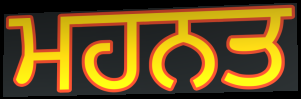
ਮਹਨਤ